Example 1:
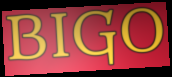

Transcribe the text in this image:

BIGO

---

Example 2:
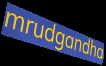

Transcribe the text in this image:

mrudgandha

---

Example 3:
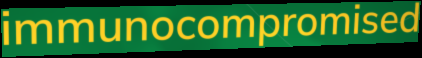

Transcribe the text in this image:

immunocompromised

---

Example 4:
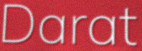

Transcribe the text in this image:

Darat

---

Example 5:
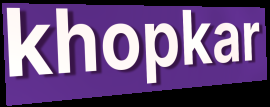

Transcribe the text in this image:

khopkar